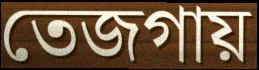
তেজগায়